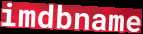
imdbname